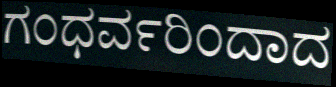
ಗಂಧರ್ವರಿಂದಾದ